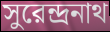
সুরেন্দ্রনাথ